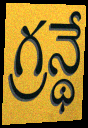
గ్రన్థే